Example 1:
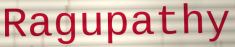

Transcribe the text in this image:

Ragupathy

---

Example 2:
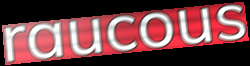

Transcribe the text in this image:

raucous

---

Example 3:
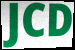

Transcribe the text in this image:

JCD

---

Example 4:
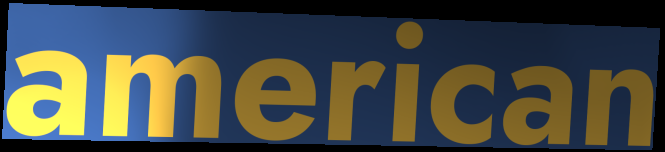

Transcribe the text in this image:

american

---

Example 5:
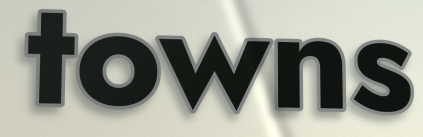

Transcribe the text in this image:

towns